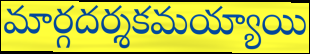
మార్గదర్శకమయ్యాయి